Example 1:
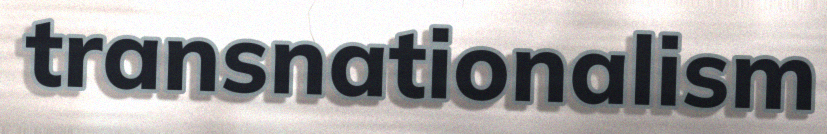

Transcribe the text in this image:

transnationalism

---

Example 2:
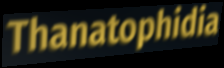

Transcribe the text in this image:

Thanatophidia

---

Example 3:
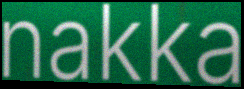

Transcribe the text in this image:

nakka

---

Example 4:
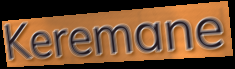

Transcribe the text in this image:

Keremane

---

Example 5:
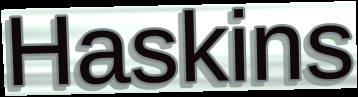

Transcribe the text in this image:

Haskins